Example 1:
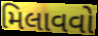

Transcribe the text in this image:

મિલાવવો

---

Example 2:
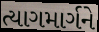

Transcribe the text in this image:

ત્યાગમાર્ગને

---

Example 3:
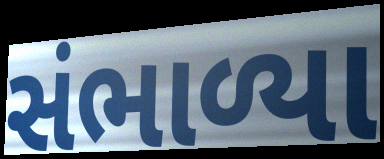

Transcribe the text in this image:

સંભાળ્યા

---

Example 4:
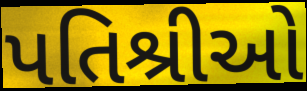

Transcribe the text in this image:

પતિશ્રીઓ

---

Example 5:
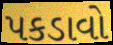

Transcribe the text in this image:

પકડાવો